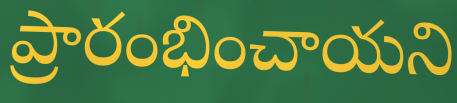
ప్రారంభించాయని